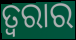
ତ୍ୱରାର